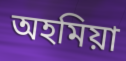
অহমিয়া